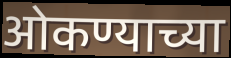
ओकण्याच्या